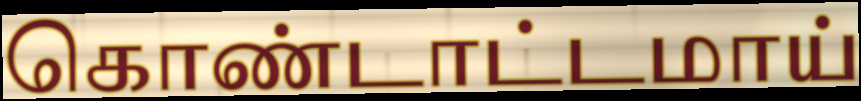
கொண்டாட்டமாய்